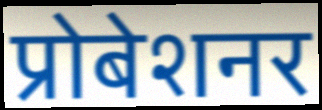
प्रोबेशनर